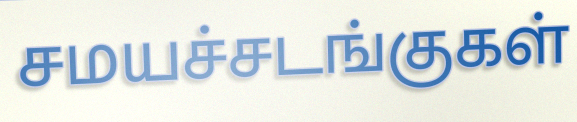
சமயச்சடங்குகள்